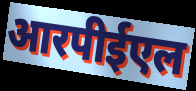
आरपीईएल